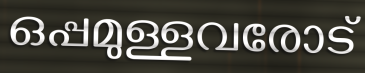
ഒപ്പമുള്ളവരോട്